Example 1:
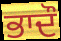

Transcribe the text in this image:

ਭਾਦੌ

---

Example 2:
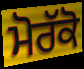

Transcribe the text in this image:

ਮੋਰੱਕੋ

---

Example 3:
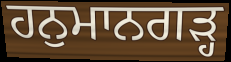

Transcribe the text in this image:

ਹਨੁਮਾਨਗੜ੍ਹ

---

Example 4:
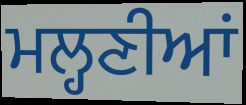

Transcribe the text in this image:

ਮਲ੍ਹਣੀਆਂ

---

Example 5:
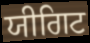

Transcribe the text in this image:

ਯੀਗਿਟ